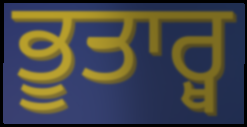
ਭੂਤਾਰ੍ਥ